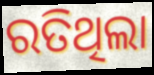
ରତିଥିଲା